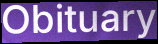
Obituary